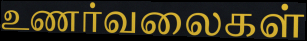
உணர்வலைகள்